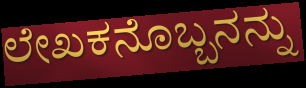
ಲೇಖಕನೊಬ್ಬನನ್ನು